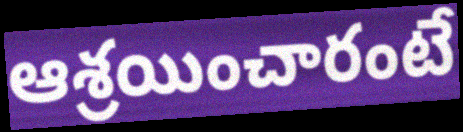
ఆశ్రయించారంటే